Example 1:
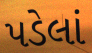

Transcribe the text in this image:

પડેલાં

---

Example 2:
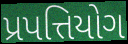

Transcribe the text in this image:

પ્રપત્તિયોગ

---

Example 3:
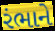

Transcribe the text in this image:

રંભાને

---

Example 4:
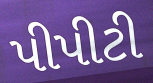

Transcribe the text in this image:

પીપીટી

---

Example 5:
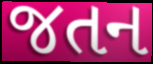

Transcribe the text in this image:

જતન